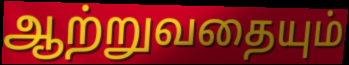
ஆற்றுவதையும்